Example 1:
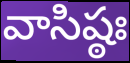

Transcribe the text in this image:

వాసిష్ఠః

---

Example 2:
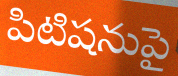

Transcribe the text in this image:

పిటిషనుపై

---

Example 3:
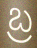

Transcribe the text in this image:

బ్ర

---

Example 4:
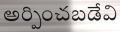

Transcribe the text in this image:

అర్పించబడేవి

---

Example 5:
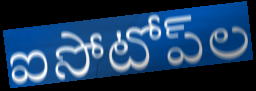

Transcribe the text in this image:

ఐసోటోప్‌ల